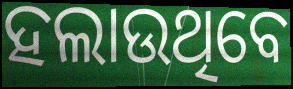
ହଲାଉଥିବେ